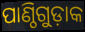
ପାଣ୍ଠିଗୁଡ଼ାକ